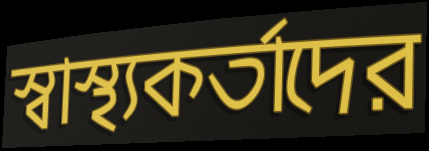
স্বাস্থ্যকর্তাদের